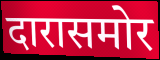
दारासमोर